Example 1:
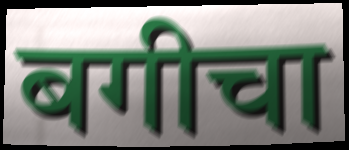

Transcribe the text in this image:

बगीचा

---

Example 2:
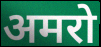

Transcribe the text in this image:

अमरो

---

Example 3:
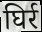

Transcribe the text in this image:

घिर्र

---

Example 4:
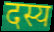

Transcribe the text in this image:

दस्य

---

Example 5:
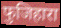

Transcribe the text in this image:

फुजिहारा